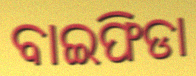
ବାଇଫିଡା